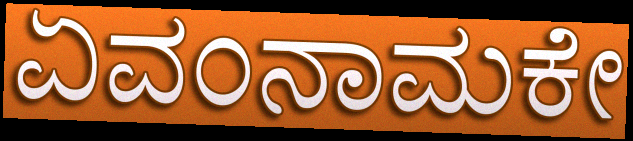
ಏವಂನಾಮಕೇ